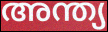
അന്ത്യ